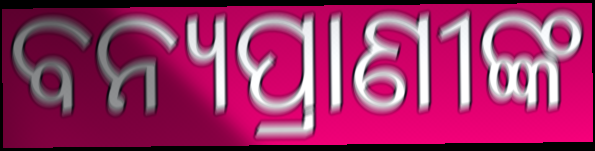
ବନ୍ୟପ୍ରାଣୀଙ୍କ